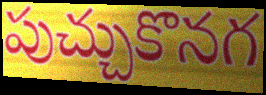
పుచ్చుకొనగ